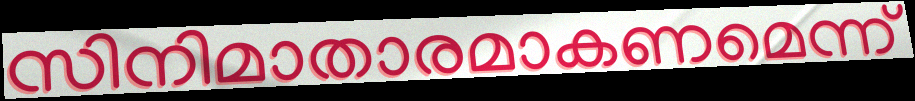
സിനിമാതാരമാകണമെന്ന്